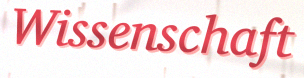
Wissenschaft